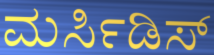
ಮರ್ಸಿಡಿಸ್